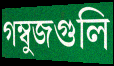
গম্বুজগুলি